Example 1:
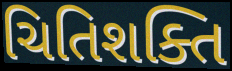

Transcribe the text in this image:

ચિતિશક્તિ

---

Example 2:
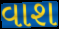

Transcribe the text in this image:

વાશ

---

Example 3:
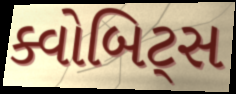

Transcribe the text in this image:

ક્વોબિટ્સ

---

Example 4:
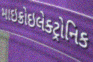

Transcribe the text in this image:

માઇક્રોઇલેક્ટ્રોનિક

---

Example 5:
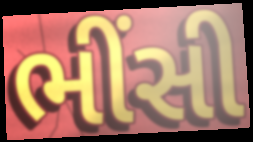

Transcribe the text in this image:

ભીંસી